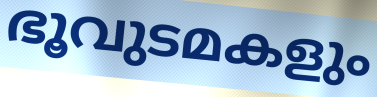
ഭൂവുടമകളും